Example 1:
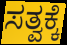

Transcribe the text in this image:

ಸತ್ವಕ್ಕೆ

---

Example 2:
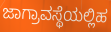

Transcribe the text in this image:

ಜಾಗ್ರಾವಸ್ಥೆಯಲ್ಲಿಹ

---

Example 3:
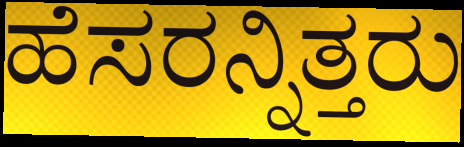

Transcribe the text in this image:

ಹೆಸರನ್ನಿತ್ತರು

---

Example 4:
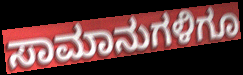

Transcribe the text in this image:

ಸಾಮಾನುಗಳಿಗೂ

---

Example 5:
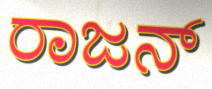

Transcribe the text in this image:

ರಾಜನ್